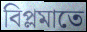
বিপ্লমাতে